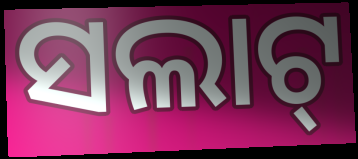
ସଲାଟ୍